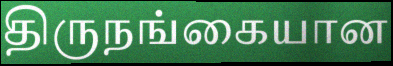
திருநங்கையான